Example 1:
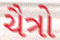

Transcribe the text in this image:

ચૈત્રો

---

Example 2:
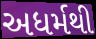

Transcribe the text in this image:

અધર્મથી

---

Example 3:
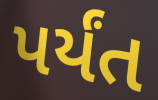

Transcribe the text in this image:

પર્યંત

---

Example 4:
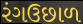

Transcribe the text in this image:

રંગઉછાળ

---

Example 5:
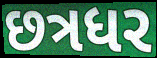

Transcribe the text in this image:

છત્રધર